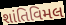
શાંતિવિમલ